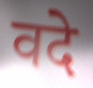
वदे